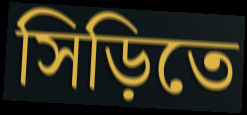
সিড়িতে